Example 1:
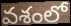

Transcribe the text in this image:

వశంలో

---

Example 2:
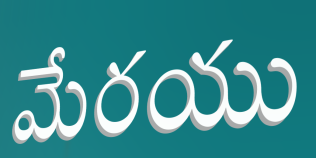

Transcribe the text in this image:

మేరయు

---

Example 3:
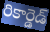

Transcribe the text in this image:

రికార్డెడ్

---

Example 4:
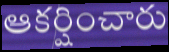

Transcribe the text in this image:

ఆకర్షించారు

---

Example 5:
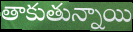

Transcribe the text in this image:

తాకుతున్నాయి